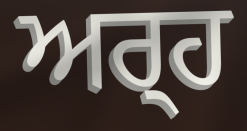
ਅਰ੍‍ਹ